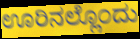
ಊರಿನಲ್ಲೊಂದು